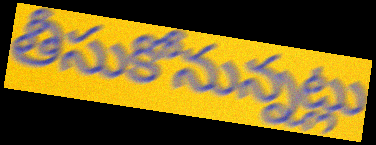
తీసుకోనున్నట్లు